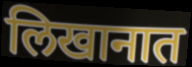
लिखानात